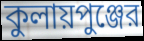
কুলায়পুঞ্জের